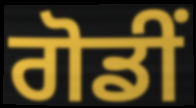
ਗੋਡੀਂ